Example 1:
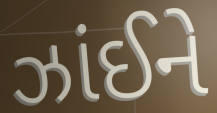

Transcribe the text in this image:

ઝાંઈને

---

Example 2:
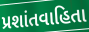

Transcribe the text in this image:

પ્રશાંતવાહિતા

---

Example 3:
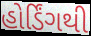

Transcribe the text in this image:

હોર્ડિંગથી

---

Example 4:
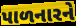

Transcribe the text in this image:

પાળનારને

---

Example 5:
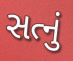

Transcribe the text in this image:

સત્નું